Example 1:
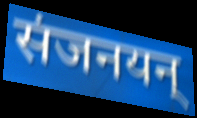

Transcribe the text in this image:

संजनयन्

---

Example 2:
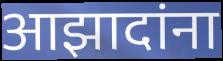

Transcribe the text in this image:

आझादांना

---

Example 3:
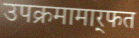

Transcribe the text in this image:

उपक्रमामार्फत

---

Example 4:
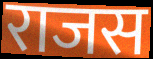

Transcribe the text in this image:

राजस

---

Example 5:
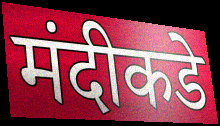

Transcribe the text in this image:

मंदीकडे